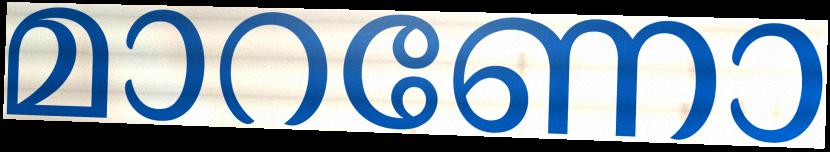
മാറണോ